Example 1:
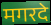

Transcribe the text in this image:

मगरदे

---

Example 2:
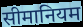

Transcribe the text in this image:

सीमानियम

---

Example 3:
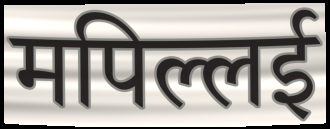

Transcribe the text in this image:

मपिल्लई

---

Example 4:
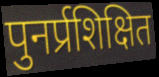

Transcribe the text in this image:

पुनर्प्रशिक्षित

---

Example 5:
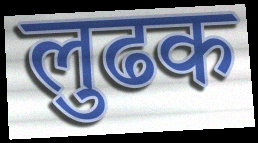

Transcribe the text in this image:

लुढक